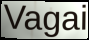
Vagai